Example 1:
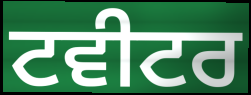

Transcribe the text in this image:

ਟਵੀਟਰ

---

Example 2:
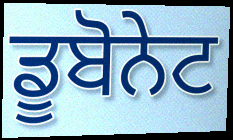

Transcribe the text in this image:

ਡੂਬੋਨੇਟ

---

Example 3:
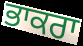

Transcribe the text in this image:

ਭਾਕਰਾ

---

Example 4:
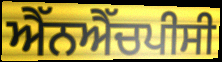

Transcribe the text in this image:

ਐੱਨਐੱਚਪੀਸੀ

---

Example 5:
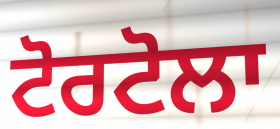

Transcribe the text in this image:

ਟੋਰਟੋਲਾ